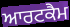
ਆਰਟਕੈਮ